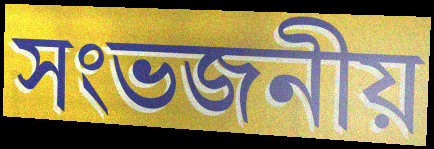
সংভজনীয়